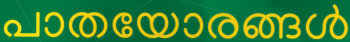
പാതയോരങ്ങൾ